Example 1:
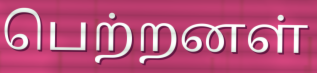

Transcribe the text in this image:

பெற்றனள்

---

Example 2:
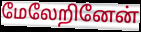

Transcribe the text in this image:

மேலேறினேன்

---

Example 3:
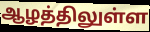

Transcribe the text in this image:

ஆழத்திலுள்ள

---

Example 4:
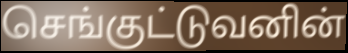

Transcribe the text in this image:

செங்குட்டுவனின்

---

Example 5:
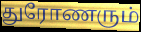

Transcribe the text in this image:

துரோணரும்